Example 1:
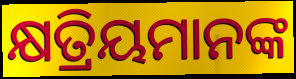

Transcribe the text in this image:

କ୍ଷତ୍ରିୟମାନଙ୍କ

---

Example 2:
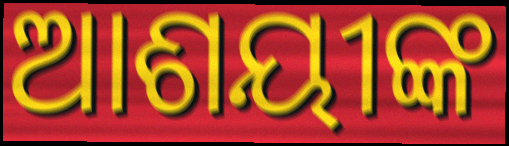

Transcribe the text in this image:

ଆଶୟୀଙ୍କ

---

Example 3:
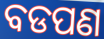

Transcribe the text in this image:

ବଡପଣ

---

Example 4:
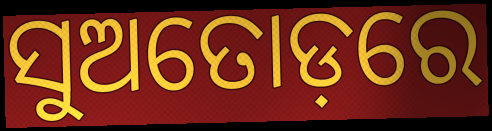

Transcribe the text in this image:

ସୁଅତୋଡ଼ରେ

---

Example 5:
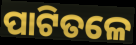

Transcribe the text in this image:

ପାଟିତଳେ